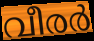
വീരർ